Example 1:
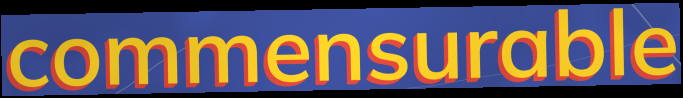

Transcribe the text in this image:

commensurable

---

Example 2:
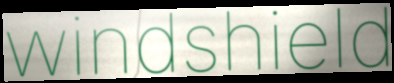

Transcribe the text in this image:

windshield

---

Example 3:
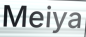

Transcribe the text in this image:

Meiya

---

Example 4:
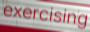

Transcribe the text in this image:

exercising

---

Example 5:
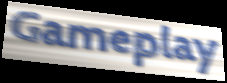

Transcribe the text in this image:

Gameplay